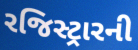
રજિસ્ટ્રારની